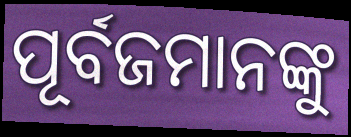
ପୂର୍ବଜମାନଙ୍କୁ